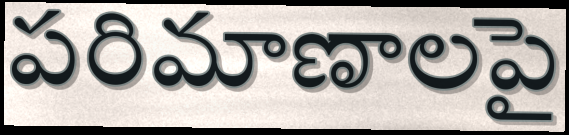
పరిమాణాలపై